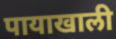
पायाखाली